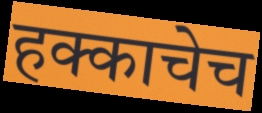
हक्काचेच